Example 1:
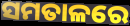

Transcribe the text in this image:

ସମତାଳରେ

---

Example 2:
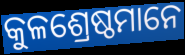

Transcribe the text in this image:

କୁଳଶ୍ରେଷ୍ଠମାନେ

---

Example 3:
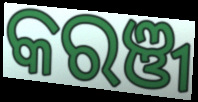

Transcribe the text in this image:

କରଞ୍ଜ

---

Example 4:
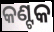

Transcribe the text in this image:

କଣ୍ଟକ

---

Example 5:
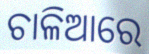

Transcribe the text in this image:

ଚାଳିଆରେ